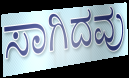
ಸಾಗಿದವು